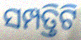
ସମ୍ପତ୍ତିଟି